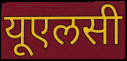
यूएलसी